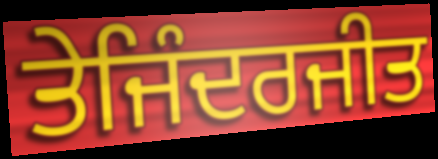
ਤੇਜਿੰਦਰਜੀਤ